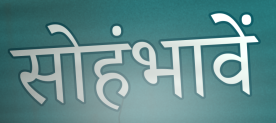
सोहंभावें